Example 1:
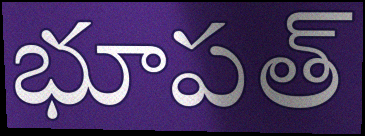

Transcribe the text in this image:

భూపత్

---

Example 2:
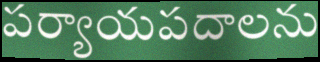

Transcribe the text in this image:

పర్యాయపదాలను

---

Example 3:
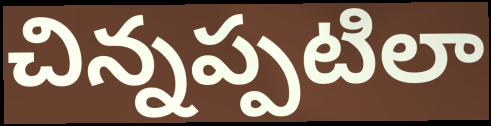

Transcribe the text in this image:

చిన్నప్పటిలా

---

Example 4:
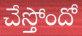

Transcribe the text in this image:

చేస్తోందో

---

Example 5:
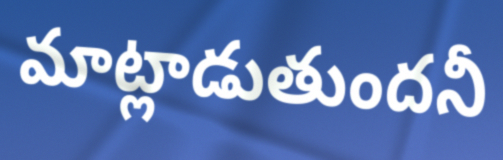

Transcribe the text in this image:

మాట్లాడుతుందనీ